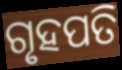
ଗୃହପତି